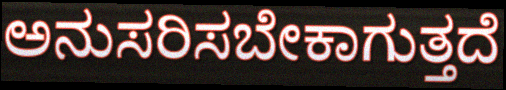
ಅನುಸರಿಸಬೇಕಾಗುತ್ತದೆ